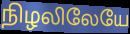
நிழலிலேயே